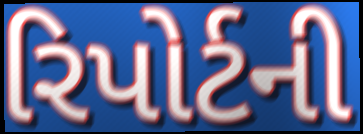
રિપોર્ટની